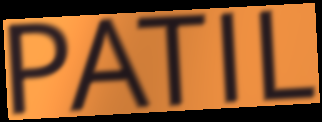
PATIL